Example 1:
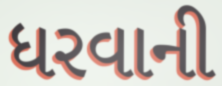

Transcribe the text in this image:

ધરવાની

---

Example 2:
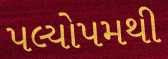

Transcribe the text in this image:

પલ્યોપમથી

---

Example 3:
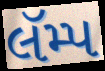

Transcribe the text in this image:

લૅમ્પ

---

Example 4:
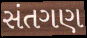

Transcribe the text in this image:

સંતગણ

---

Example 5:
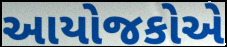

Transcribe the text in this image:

આયોજકોએ